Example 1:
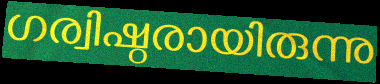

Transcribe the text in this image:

ഗര്വിഷ്ഠരായിരുന്നു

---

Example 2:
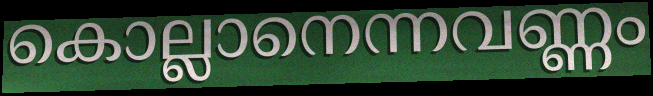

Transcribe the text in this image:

കൊല്ലാനെന്നവണ്ണം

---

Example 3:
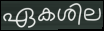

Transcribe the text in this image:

ഏകശില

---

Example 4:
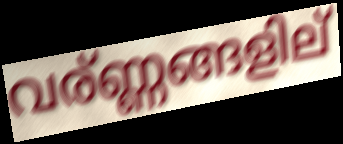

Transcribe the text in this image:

വര്ണ്ണങ്ങളില്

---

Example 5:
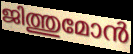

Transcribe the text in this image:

ജിത്തുമോൻ